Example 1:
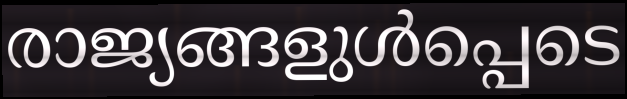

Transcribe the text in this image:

രാജ്യങ്ങളുൾപ്പെടെ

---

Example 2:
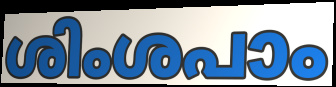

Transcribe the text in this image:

ശിംശപാം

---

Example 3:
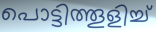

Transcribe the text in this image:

പൊട്ടിത്തൂളിച്ച്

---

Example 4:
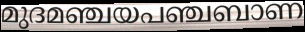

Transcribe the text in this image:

മുദമഞ്ചയപഞ്ചബാണ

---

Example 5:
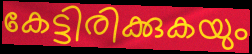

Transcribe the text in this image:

കേട്ടിരിക്കുകയും